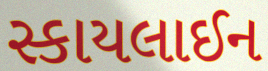
સ્કાયલાઈન